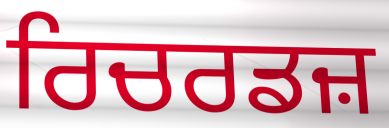
ਰਿਚਰਡਜ਼